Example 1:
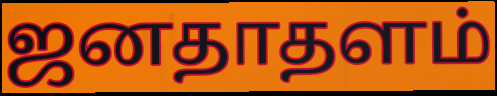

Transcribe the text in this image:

ஜனதாதளம்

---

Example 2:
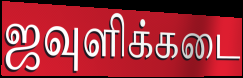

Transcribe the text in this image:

ஜவுளிக்கடை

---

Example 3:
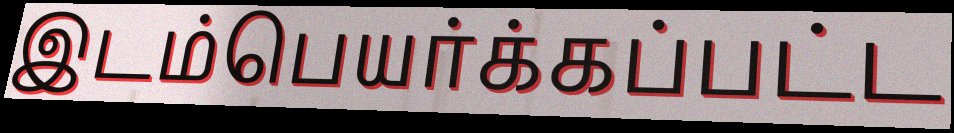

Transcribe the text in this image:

இடம்பெயர்க்கப்பட்ட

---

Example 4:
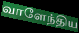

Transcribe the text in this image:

வாளேந்திய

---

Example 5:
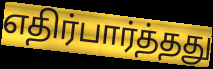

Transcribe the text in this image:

எதிர்பார்த்தது